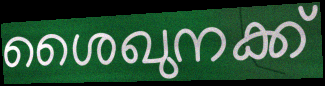
ശൈഖുനക്ക്